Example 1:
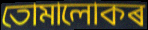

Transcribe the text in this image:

তোমালোকৰ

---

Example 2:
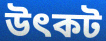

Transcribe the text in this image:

উৎকট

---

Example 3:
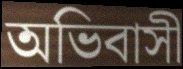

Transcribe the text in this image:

অভিবাসী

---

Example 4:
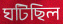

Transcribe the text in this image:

ঘটিছিল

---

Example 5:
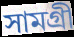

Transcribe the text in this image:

সামগ্ৰী